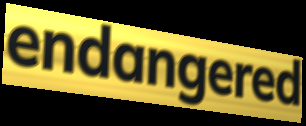
endangered